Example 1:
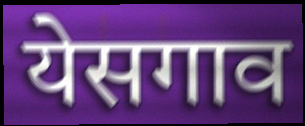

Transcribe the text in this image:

येसगाव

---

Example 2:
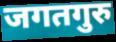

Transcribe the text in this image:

जगतगुरु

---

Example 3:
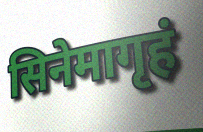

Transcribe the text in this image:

सिनेमागृहं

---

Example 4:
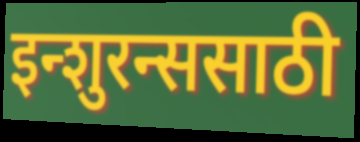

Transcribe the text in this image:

इन्शुरन्ससाठी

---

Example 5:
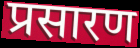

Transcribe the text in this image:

प्रसारण